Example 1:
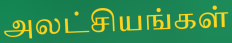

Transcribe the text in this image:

அலட்சியங்கள்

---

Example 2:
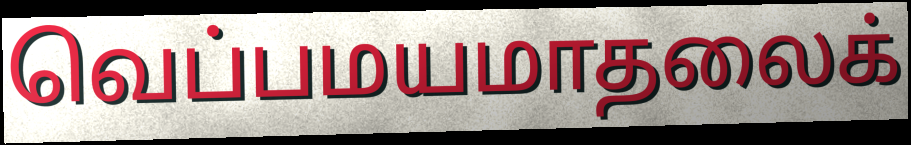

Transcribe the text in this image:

வெப்பமயமாதலைக்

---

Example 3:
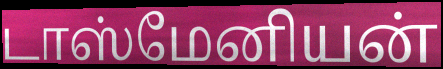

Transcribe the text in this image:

டாஸ்மேனியன்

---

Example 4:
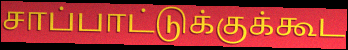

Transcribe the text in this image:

சாப்பாட்டுக்குக்கூட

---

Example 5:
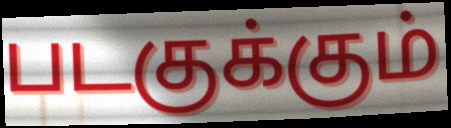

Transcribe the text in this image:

படகுக்கும்